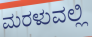
ಮರಳುವಲ್ಲಿ